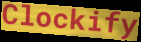
Clockify